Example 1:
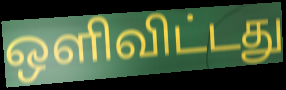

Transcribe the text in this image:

ஒளிவிட்டது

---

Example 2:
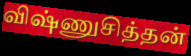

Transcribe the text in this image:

விஷ்ணுசித்தன்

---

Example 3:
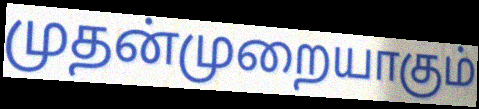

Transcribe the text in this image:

முதன்முறையாகும்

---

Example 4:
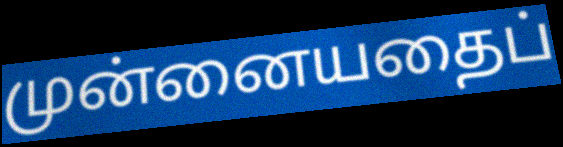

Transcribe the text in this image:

முன்னையதைப்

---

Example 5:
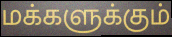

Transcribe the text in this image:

மக்களுக்கும்